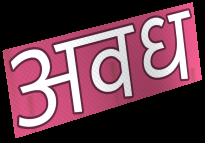
अवध